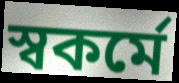
স্বকর্মে